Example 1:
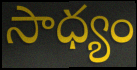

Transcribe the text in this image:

సాధ్యం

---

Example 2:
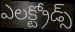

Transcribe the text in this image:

ఎలక్ట్రోడ్స్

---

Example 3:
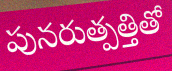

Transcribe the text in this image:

పునరుత్పత్తితో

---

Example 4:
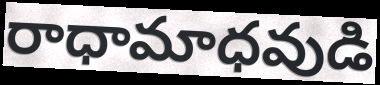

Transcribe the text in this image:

రాధామాధవుడి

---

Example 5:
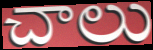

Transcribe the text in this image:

చాలు